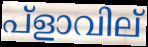
പ്ളാവില്